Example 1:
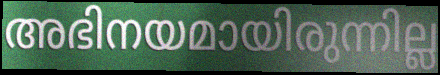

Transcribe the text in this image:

അഭിനയമായിരുന്നില്ല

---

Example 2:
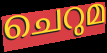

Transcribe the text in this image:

ചെറുമ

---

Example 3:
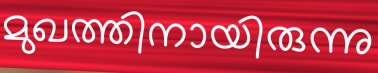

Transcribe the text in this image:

മുഖത്തിനായിരുന്നു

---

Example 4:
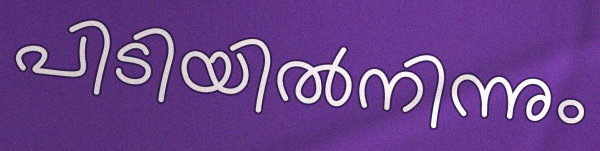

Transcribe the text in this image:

പിടിയിൽനിന്നും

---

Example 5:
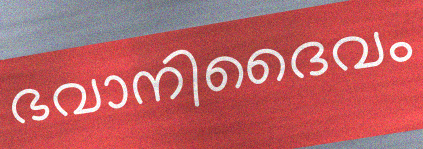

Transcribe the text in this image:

ഭവാനിദൈവം